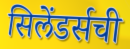
सिलेंडर्सची